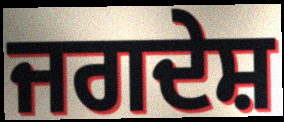
ਜਗਦੇਸ਼